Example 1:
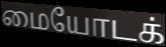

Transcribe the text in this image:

மையோடக்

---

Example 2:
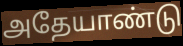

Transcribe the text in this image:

அதேயாண்டு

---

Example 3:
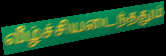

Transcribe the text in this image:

வீழ்ச்சியடைந்ததும்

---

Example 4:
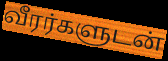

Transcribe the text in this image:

வீரர்களுடன்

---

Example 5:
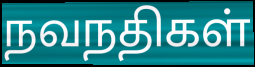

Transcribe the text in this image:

நவநதிகள்